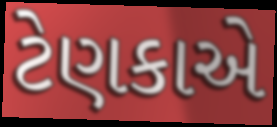
ટેણકાએ